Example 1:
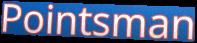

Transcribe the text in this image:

Pointsman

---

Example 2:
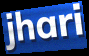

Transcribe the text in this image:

jhari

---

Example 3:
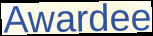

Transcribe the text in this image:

Awardee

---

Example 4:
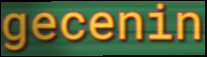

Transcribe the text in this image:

gecenin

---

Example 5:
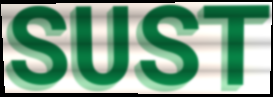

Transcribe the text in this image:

SUST